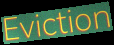
Eviction